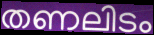
തണലിടം